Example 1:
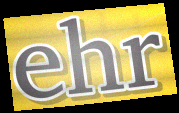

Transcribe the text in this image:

ehr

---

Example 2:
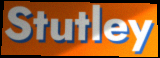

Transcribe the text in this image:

Stutley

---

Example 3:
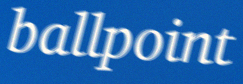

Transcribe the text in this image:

ballpoint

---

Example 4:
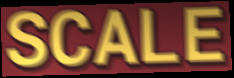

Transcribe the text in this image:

SCALE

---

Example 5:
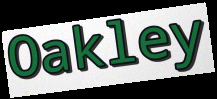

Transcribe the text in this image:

Oakley